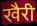
खैरी